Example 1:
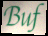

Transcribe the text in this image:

Buf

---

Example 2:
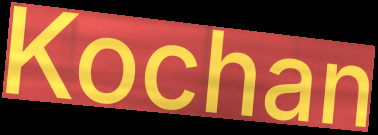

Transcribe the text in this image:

Kochan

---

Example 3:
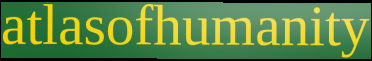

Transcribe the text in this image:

atlasofhumanity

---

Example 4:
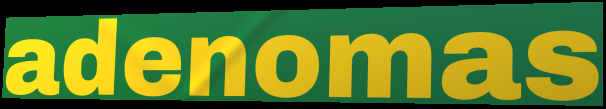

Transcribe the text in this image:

adenomas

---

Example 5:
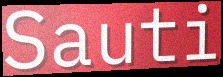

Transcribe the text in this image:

Sauti